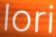
lori